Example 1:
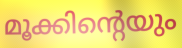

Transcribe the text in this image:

മൂക്കിന്റെയും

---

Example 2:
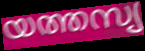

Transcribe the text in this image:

യത്തസ്യ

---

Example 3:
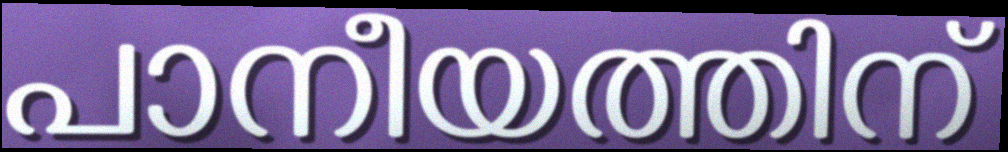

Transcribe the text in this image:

പാനീയത്തിന്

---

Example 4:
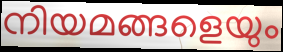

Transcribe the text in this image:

നിയമങ്ങളെയും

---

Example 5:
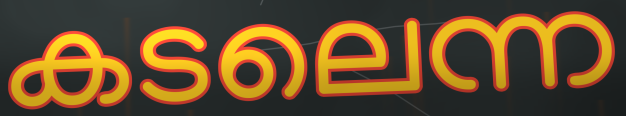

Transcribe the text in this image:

കടലെന്ന